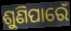
ଶୁଣିପାରେଁ